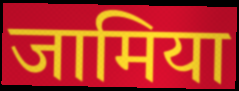
जामिया